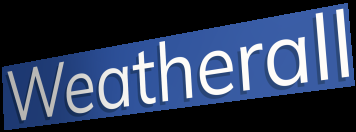
Weatherall